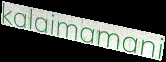
kalaimamani